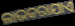
ଲାଭକରାଯାଏ